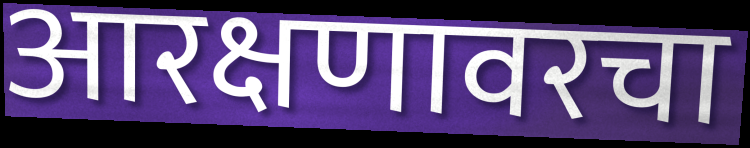
आरक्षणावरचा